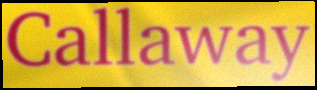
Callaway